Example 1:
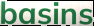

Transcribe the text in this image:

basins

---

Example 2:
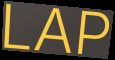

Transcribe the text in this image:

LAP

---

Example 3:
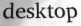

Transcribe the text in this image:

desktop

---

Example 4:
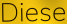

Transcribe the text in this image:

Diese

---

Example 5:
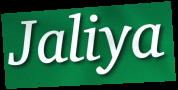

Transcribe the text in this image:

Jaliya